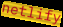
netlify